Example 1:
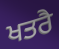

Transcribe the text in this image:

ਖਤਰੈ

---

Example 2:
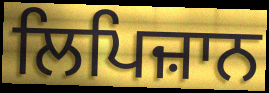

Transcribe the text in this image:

ਲਿਪਿਜ਼ਾਨ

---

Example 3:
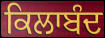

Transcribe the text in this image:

ਕਿਲਾਬੰਦ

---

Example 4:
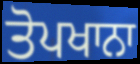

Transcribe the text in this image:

ਤੋਪਖਾਨਾ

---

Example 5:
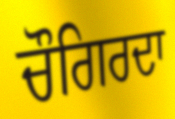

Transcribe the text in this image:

ਚੌਗਿਰਦਾ